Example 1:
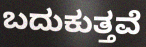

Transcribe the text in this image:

ಬದುಕುತ್ತವೆ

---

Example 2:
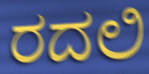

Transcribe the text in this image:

ರದಲಿ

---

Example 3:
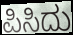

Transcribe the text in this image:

ಪಿಸಿದು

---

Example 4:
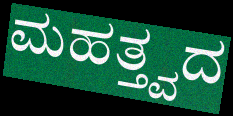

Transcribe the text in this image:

ಮಹತ್ತ್ವದ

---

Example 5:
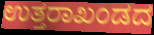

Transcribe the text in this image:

ಉತ್ತರಾಖಂಡದ